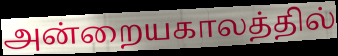
அன்றையகாலத்தில்